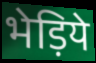
भेड़िये